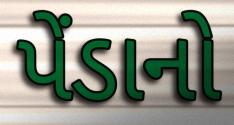
પેંડાનો